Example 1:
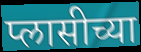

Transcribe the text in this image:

प्लासीच्या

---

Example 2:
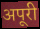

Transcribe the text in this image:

अपूरी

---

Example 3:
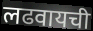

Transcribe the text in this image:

लढवायची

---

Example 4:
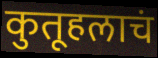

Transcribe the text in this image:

कुतूहलाचं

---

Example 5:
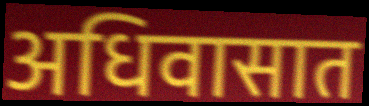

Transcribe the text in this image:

अधिवासात